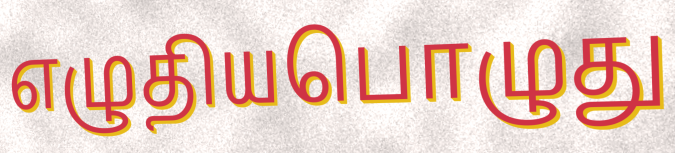
எழுதியபொழுது